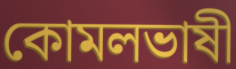
কোমলভাষী